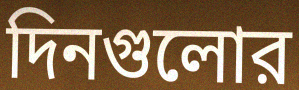
দিনগুলোর